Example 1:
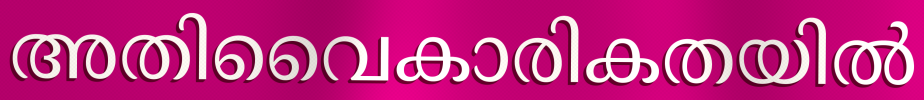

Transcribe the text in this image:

അതിവൈകാരികതയിൽ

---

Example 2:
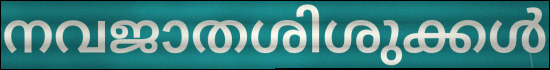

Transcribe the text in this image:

നവജാതശിശുക്കൾ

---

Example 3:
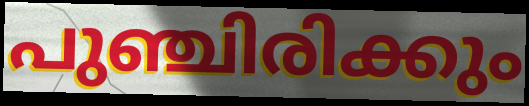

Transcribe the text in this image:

പുഞ്ചിരിക്കും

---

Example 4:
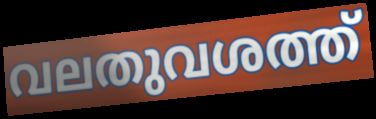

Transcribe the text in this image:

വലതുവശത്ത്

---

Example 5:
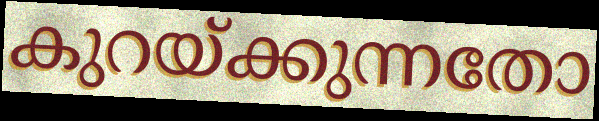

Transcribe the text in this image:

കുറയ്ക്കുന്നതോ